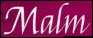
Malm